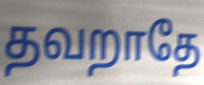
தவறாதே